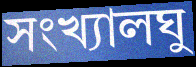
সংখ্যালঘু